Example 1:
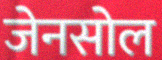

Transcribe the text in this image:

जेनसोल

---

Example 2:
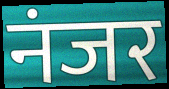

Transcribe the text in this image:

नंजर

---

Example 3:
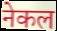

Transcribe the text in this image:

नेकल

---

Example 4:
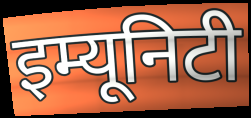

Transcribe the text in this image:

इम्‍यूनिटी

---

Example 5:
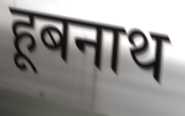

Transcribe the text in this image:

हूबनाथ